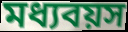
মধ্যবয়স